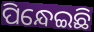
ପିନ୍ଧେଇଛି